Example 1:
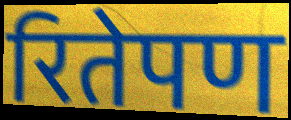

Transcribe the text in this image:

रितेपण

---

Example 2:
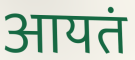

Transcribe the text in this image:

आयतं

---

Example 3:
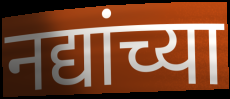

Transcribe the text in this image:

नद्यांच्या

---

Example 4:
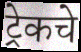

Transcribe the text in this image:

ट्रेकचे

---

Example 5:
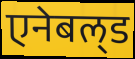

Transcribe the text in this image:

एनेबल्ड